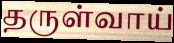
தருள்வாய்